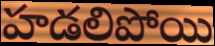
హడలిపోయి